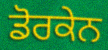
ਡੋਰਕੇਨ